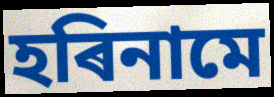
হৰিনামে